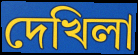
দেখিলা